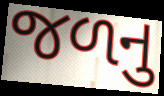
જળનુ